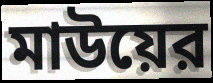
মাউয়ের